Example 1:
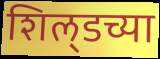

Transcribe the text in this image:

शिल्डच्या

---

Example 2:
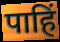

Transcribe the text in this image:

पाहिं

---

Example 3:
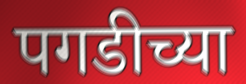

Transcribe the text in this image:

पगडीच्या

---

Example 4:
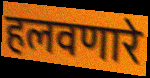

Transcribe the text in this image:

हलवणारे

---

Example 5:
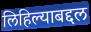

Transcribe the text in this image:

लिहिल्याबद्दल